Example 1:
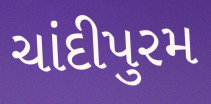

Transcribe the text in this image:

ચાંદીપુરમ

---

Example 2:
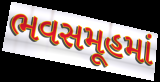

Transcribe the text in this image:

ભવસમૂહમાં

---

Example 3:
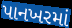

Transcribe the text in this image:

પાનખરમાં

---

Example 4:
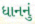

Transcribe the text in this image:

ધાનનું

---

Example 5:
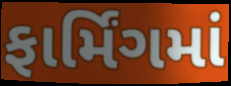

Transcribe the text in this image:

ફાર્મિંગમાં